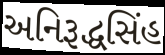
અનિરૂદ્ધસિંહ